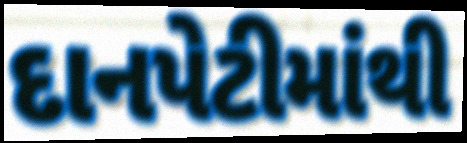
દાનપેટીમાંથી